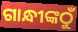
ଗାନ୍ଧୀଙ୍କଠୁଁ